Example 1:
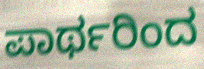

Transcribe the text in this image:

ಪಾರ್ಥರಿಂದ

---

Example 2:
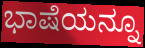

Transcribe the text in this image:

ಭಾಷೆಯನ್ನೂ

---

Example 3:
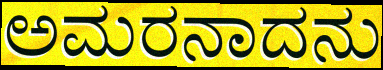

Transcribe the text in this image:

ಅಮರನಾದನು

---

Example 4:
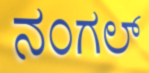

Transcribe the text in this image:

ನಂಗಲ್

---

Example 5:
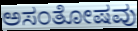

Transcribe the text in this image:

ಅಸಂತೋಷವು